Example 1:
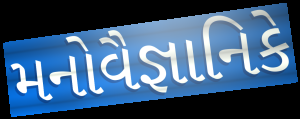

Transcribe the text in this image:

મનોવૈજ્ઞાનિકે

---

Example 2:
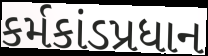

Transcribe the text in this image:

કર્મકાંડપ્રધાન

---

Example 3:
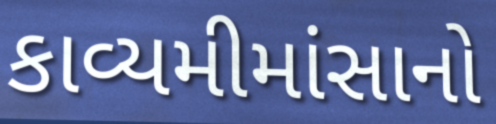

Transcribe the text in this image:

કાવ્યમીમાંસાનો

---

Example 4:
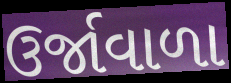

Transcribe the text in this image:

ઉર્જાવાળા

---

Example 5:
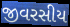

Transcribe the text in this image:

જીવરસીય